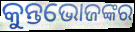
କୁନ୍ତଭୋଜଙ୍କର